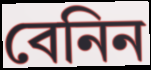
বেনিন